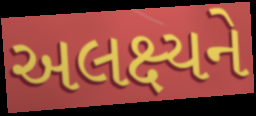
અલક્ષ્યને